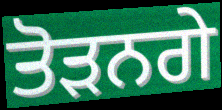
ਤੋੜਨਗੇ